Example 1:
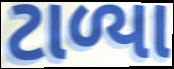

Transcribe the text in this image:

ટાળ્યા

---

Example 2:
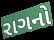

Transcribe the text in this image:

રાગનો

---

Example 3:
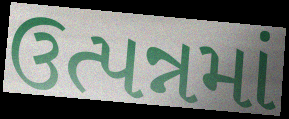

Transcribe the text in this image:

ઉત્પન્નમાં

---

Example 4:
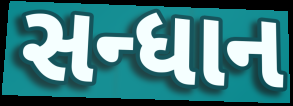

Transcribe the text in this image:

સન્ધાન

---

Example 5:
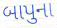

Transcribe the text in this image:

બાપુના